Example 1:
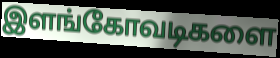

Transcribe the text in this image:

இளங்கோவடிகளை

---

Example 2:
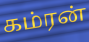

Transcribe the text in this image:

கம்ரன்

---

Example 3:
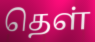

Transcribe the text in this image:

தெள்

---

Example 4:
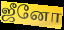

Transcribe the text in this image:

ஜீனோ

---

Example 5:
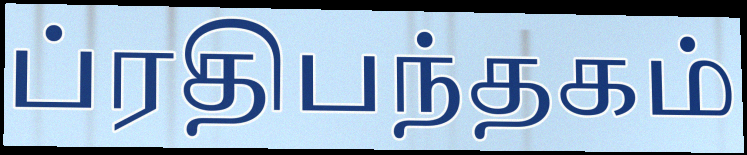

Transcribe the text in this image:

ப்ரதிபந்தகம்